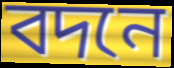
বদনে